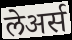
लेअर्स